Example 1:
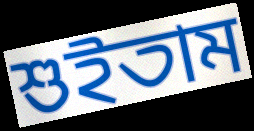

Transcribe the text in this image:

শুইতাম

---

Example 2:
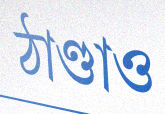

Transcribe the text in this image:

ঠাণ্ডাও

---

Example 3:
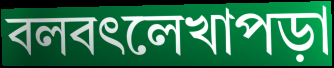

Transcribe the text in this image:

বলবৎলেখাপড়া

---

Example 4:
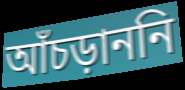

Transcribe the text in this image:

আঁচড়াননি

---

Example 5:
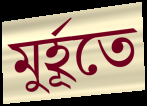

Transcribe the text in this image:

মুর্হূতে